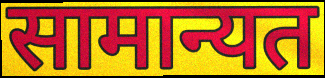
सामान्यत